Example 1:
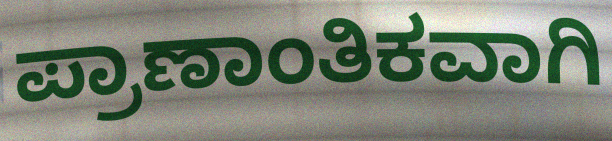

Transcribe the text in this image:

ಪ್ರಾಣಾಂತಿಕವಾಗಿ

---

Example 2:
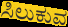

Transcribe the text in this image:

ಸಿಲುಕುವ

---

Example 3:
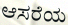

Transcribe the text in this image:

ಆಸರೆಯ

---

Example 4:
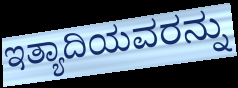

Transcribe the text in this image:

ಇತ್ಯಾದಿಯವರನ್ನು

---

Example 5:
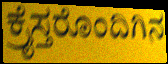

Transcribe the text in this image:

ಕ್ರೈಸ್ತರೊಂದಿಗಿನ